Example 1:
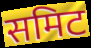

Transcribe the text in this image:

समिट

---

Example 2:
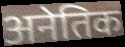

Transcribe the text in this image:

अनेतिक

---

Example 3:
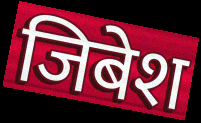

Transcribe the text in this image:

जिबेश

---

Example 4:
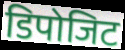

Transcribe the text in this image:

डिपोजिट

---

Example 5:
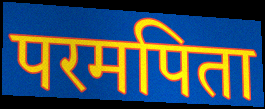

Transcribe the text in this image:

परमपिता